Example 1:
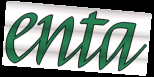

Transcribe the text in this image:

enta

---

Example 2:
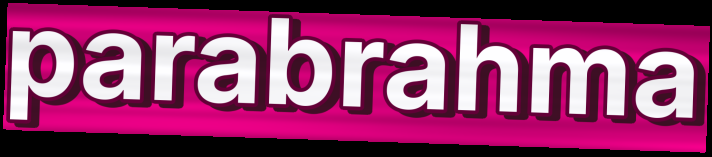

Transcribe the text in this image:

parabrahma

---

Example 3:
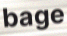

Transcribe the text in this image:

bage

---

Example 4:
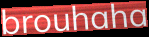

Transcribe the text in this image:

brouhaha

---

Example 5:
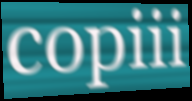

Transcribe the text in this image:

copiii